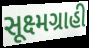
સૂક્ષ્મગ્રાહી